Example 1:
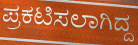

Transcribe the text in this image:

ಪ್ರಕಟಿಸಲಾಗಿದ್ದ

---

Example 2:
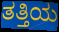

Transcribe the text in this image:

ತತ್ತಿಯ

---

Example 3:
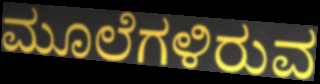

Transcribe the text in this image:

ಮೂಲೆಗಳಿರುವ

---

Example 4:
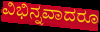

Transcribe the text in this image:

ವಿಭಿನ್ನವಾದರೂ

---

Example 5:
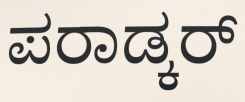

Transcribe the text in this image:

ಪರಾಡ್ಕರ್